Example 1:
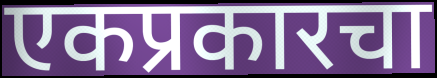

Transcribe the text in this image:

एकप्रकारचा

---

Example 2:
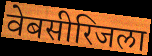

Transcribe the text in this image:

वेबसीरिजला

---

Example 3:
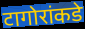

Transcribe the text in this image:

टागोरांकडे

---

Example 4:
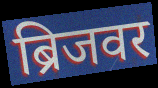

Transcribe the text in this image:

ब्रिजवर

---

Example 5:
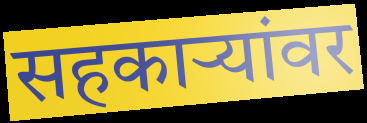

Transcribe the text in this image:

सहकार्‍यांवर